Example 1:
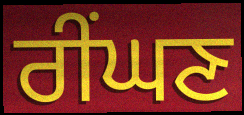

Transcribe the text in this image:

ਰੀਂਘਣ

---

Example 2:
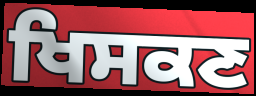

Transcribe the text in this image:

ਖਿਸਕਣ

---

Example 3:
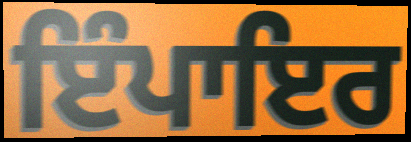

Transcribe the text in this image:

ਇੰਪਾਇਰ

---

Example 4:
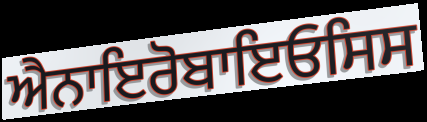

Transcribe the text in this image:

ਐਨਾਇਰੋਬਾਇਓਸਿਸ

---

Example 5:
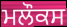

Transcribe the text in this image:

ਮਲੌਕਸ